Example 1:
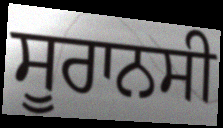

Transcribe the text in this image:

ਸੂਰਾਨਸੀ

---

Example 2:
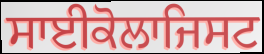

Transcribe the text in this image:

ਸਾਈਕੋਲਾਜਿਸਟ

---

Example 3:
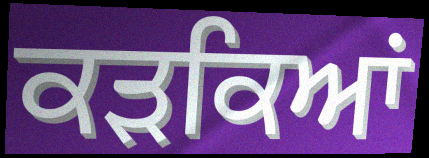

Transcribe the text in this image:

ਕੜਕਿਆਂ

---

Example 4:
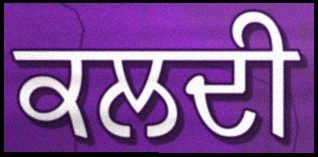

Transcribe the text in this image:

ਕਲਦੀ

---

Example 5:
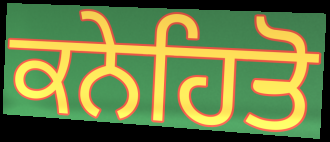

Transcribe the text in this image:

ਕਨੇਹਿਤੋ